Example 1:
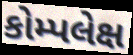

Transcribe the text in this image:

કોમ્પલેક્ષ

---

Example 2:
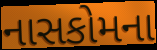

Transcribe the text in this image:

નાસકોમના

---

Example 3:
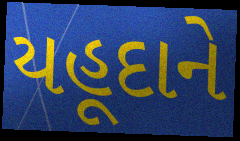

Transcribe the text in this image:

યહૂદાને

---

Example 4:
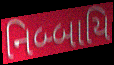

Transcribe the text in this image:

નિબ્બાયિ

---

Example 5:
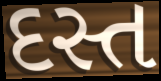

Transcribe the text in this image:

દસ્ત